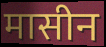
मासीन